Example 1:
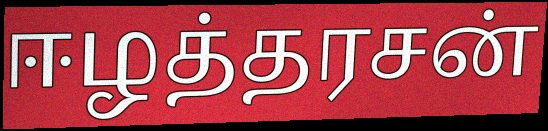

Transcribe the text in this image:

ஈழத்தரசன்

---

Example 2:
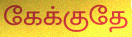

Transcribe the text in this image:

கேக்குதே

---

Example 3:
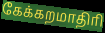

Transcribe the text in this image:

கேக்கறமாதிரி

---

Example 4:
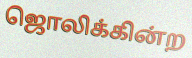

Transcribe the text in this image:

ஜொலிக்கின்ற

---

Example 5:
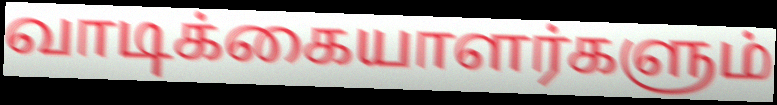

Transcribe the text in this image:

வாடிக்கையாளர்களும்